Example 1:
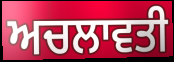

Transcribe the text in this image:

ਅਚਲਾਵਤੀ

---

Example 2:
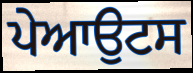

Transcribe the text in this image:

ਪੇਆਉਟਸ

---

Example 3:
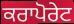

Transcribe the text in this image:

ਕਰਾਪੋਰੇਟ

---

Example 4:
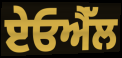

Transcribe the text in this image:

ਏਓਐੱਲ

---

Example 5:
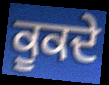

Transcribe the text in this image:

ਕੂਕਦੇ